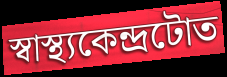
স্বাস্থ্যকেন্দ্ৰটোত